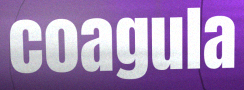
coagula